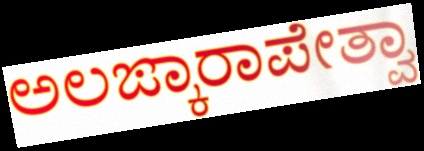
ಅಲಙ್ಕಾರಾಪೇತ್ವಾ